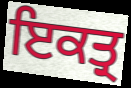
ਇਕਤ੍ਰ